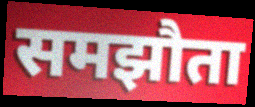
समझौता